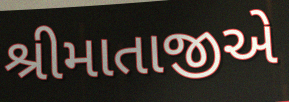
શ્રીમાતાજીએ